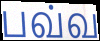
பவ்வ